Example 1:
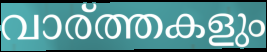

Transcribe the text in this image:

വാര്ത്തകളും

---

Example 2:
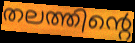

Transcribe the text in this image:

തലത്തിന്റെ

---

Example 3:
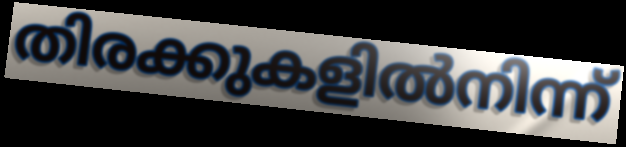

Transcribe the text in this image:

തിരക്കുകളിൽനിന്ന്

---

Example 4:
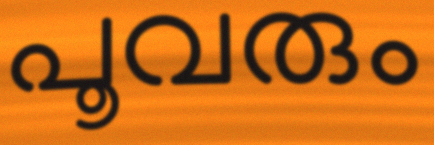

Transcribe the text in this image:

പൂവരും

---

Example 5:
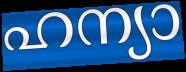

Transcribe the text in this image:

ഹന്യാ